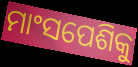
ମାଂସପେଶିକୁ